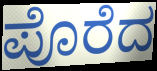
ಪೊರೆದ